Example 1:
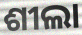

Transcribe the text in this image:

ଶୀଲା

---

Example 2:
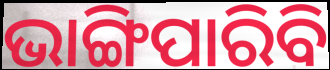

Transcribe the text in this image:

ଭାଙ୍ଗିପାରିବି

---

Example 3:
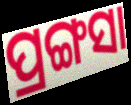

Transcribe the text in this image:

ପ୍ରଙ୍ଗସା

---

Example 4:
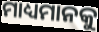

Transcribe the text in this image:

ମାଧ୍ୟମାନକୁ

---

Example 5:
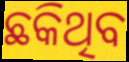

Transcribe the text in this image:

ଛକିଥିବ